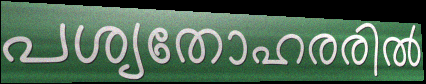
പശ്യതോഹരരിൽ